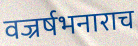
वज्रर्षभनाराच